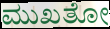
ಮುಖತೋ